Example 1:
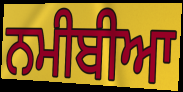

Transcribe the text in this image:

ਨਮੀਬੀਆ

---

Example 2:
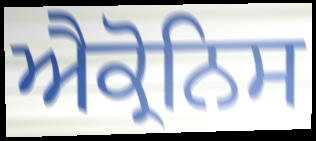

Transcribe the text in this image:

ਐਕ੍ਰੋਨਿਸ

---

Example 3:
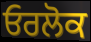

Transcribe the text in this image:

ਓਰਲੋਕ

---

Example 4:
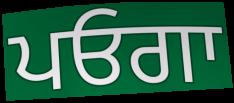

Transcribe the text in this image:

ਪਓਗਾ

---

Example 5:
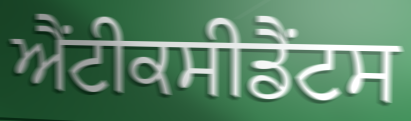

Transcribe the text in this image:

ਐਂਟੀਕਸੀਡੈਂਟਸ